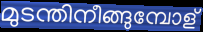
മുടന്തിനീങ്ങുമ്പോള്